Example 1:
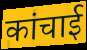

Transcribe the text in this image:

कांचाई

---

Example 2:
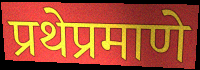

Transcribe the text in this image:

प्रथेप्रमाणे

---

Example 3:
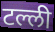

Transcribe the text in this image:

टल्ली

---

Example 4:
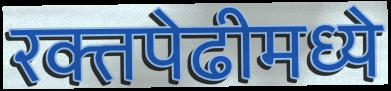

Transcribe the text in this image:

रक्तपेढीमध्ये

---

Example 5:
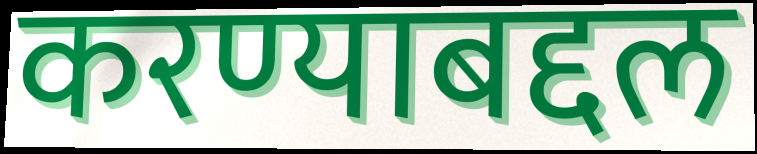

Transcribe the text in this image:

करण्याबद्दल